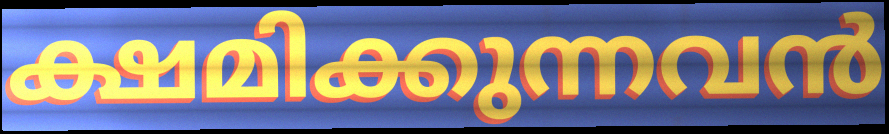
ക്ഷമിക്കുന്നവൻ